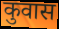
कुवास